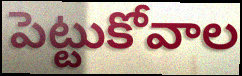
పెట్టుకోవాల